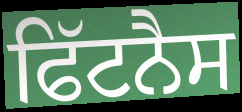
ਫਿੱਟਨੈਸ